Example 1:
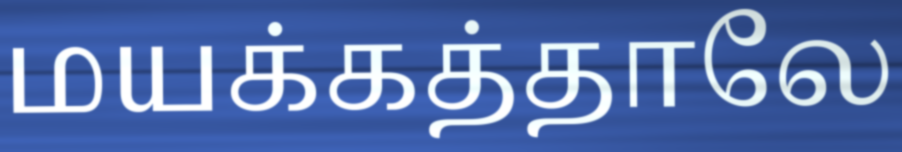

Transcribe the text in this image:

மயக்கத்தாலே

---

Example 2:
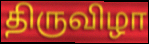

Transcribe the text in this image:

திருவிழா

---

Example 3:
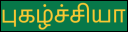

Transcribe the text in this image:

புகழ்ச்சியா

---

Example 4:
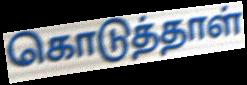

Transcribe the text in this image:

கொடுத்தாள்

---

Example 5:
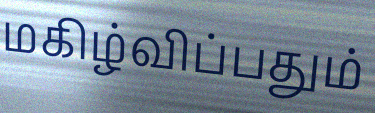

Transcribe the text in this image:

மகிழ்விப்பதும்